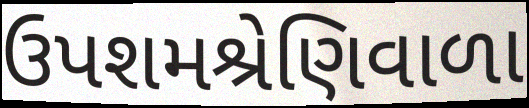
ઉપશમશ્રેણિવાળા